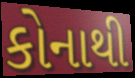
કોનાથી